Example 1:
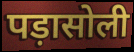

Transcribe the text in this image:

पड़ासोली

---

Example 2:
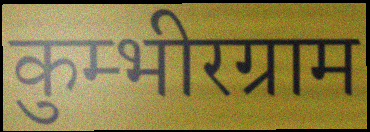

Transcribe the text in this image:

कुम्भीरग्राम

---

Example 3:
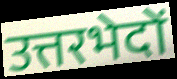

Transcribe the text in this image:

उत्तरभेदों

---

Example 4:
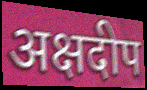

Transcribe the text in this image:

अक्षदीप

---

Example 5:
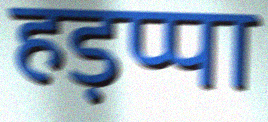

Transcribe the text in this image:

हड़प्पा